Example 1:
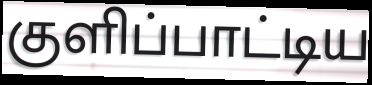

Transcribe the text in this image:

குளிப்பாட்டிய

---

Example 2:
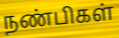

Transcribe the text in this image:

நண்பிகள்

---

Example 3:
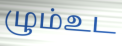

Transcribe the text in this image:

ழும்உட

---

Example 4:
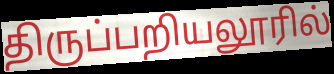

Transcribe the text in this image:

திருப்பறியலூரில்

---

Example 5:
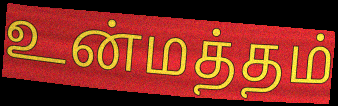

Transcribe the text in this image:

உன்மத்தம்